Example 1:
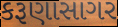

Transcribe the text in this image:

કરૂણાસાગર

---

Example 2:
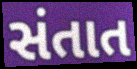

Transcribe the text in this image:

સંતાત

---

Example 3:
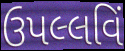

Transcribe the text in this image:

ઉપલ્લવિં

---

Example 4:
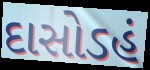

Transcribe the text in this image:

દાસોઽહં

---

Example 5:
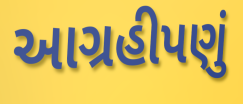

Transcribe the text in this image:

આગ્રહીપણું